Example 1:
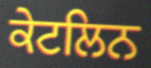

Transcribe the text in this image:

ਕੇਟਲਿਨ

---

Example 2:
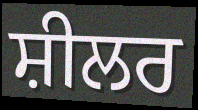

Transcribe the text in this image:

ਸ਼ੀਲਰ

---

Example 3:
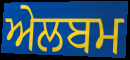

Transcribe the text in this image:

ਅੇਲਬਮ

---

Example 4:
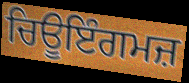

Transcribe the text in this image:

ਚਿਊਇੰਗਮਜ਼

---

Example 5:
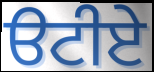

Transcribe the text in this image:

ੳਟੀਏ